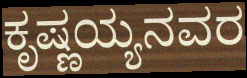
ಕೃಷ್ಣಯ್ಯನವರ